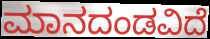
ಮಾನದಂಡವಿದೆ